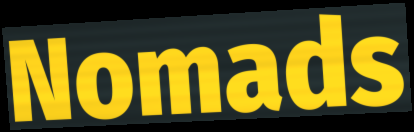
Nomads